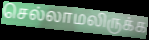
செல்லாமலிருக்க